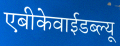
एबीकेवाईडब्ल्यू